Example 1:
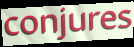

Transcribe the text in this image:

conjures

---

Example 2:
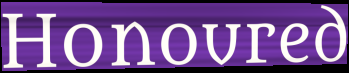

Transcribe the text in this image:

Honoured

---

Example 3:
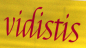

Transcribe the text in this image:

vidistis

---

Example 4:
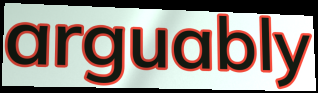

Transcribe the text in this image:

arguably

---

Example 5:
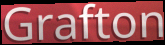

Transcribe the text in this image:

Grafton